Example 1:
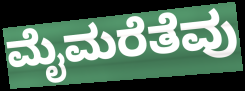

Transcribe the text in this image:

ಮೈಮರೆತೆವು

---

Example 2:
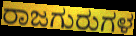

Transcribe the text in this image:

ರಾಜಗುರುಗಳ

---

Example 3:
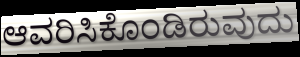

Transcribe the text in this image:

ಆವರಿಸಿಕೊಂಡಿರುವುದು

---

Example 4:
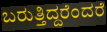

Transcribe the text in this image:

ಬರುತ್ತಿದ್ದರೆಂದರೆ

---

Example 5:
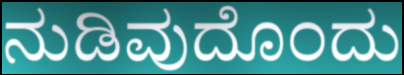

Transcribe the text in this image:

ನುಡಿವುದೊಂದು